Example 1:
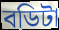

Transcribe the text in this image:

বডিটা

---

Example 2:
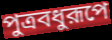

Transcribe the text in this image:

পুত্রবধুরূপে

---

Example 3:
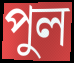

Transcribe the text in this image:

পুল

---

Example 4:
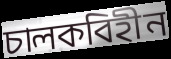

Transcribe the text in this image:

চালকবিহীন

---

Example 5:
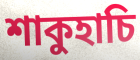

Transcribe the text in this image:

শাকুহাচি